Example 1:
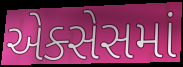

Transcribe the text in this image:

એક્સેસમાં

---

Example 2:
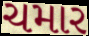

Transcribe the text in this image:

ચમાર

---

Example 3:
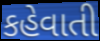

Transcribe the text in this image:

કહેવાતી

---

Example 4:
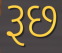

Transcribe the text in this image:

રૂછ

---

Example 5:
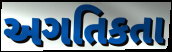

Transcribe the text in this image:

અગતિકતા